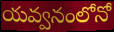
యవ్వనంలోనో